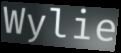
Wylie